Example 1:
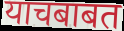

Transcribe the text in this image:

याचबाबत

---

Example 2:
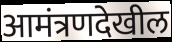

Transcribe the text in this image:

आमंत्रणदेखील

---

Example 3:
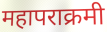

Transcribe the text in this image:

महापराक्रमी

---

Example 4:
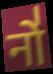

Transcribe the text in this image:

नो॑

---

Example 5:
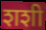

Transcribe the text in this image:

शशी